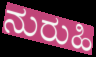
ನುರುಹಿ